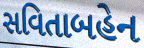
સવિતાબહેન